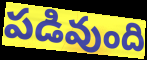
పడివుంది